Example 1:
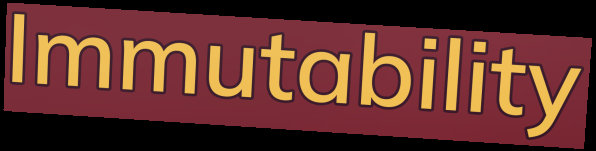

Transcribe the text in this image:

Immutability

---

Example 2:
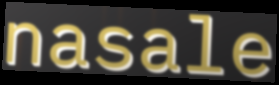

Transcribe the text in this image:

nasale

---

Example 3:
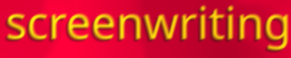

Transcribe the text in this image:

screenwriting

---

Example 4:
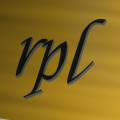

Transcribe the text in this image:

rpl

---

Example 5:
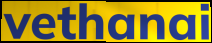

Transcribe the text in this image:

vethanai